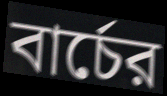
বার্চের